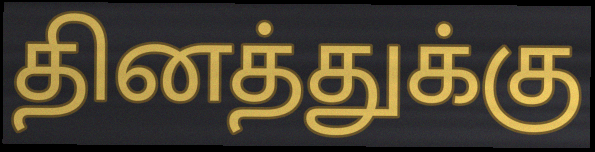
தினத்துக்கு